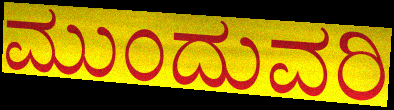
ಮುಂದುವರಿ